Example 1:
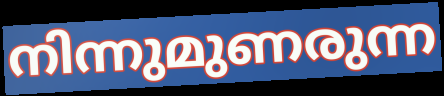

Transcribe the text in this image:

നിന്നുമുണരുന്ന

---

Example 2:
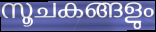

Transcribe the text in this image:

സൂചകങ്ങളും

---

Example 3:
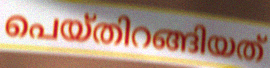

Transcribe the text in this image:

പെയ്തിറങ്ങിയത്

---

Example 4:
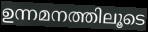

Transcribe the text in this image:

ഉന്നമനത്തിലൂടെ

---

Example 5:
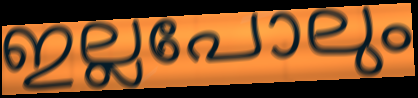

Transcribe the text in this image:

ഇല്ലപോലും